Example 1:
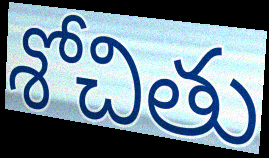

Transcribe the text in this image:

శోచితు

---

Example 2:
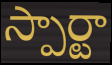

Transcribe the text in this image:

స్పార్టా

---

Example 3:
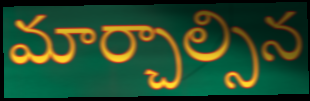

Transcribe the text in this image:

మార్చాల్సిన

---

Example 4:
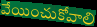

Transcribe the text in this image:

వేయించుకోవాలి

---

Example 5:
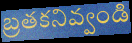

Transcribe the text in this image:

బ్రతకనివ్వండి